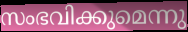
സംഭവിക്കുമെന്നു